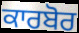
ਕਾਰਬੋਰ